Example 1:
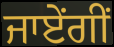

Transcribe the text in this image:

ਜਾਏਂਗੀਂ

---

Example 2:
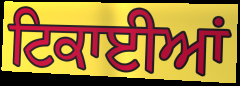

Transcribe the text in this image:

ਟਿਕਾਈਆਂ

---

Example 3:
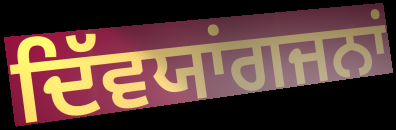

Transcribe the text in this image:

ਦਿੱਵਯਾਂਗਜਨਾਂ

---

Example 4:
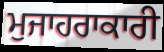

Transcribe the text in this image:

ਮੁਜਾਹਰਾਕਾਰੀ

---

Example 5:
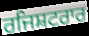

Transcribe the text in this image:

ਰਜਿਸ਼ਟਰਾਰ